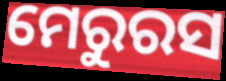
ମେରୁରସ